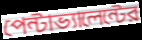
পেন্টাভ্যালেন্টের